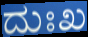
ದುಃಖ